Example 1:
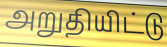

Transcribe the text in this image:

அறுதியிட்டு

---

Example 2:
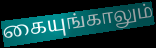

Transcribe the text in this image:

கையுங்காலும்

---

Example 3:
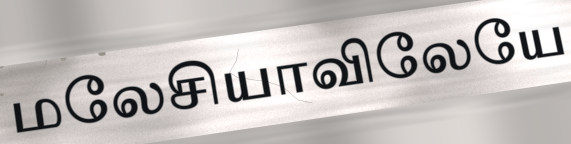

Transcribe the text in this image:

மலேசியாவிலேயே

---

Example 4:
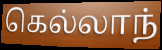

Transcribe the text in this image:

கெல்லாந்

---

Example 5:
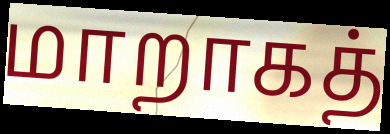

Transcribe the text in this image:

மாறாகத்